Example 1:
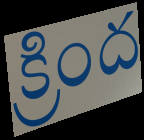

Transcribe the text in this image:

క్రింద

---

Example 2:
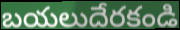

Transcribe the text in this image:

బయలుదేరకండి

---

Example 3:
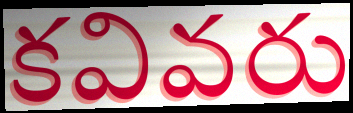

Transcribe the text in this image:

కవివరు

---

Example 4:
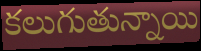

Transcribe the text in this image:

కలుగుతున్నాయి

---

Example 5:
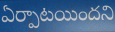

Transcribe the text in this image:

ఏర్పాటయిందని